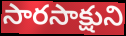
సారసాక్షుని